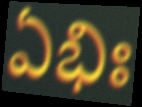
ఏభిః